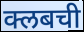
क्लबची